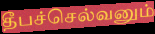
தீபச்செல்வனும்